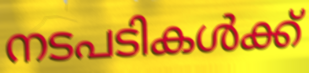
നടപടികൾക്ക്